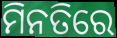
ମିନତିରେ